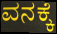
ವನಕ್ಕೆ